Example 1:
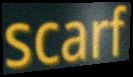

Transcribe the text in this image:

scarf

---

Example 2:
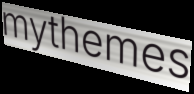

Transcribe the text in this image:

mythemes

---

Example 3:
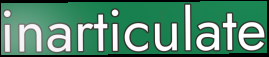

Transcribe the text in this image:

inarticulate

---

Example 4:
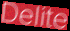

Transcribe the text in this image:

Delite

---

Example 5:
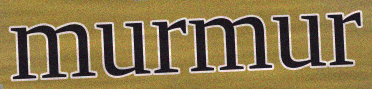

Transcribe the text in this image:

murmur